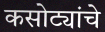
कसोट्यांचे